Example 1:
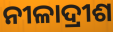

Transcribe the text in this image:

ନୀଳାଦ୍ରୀଶ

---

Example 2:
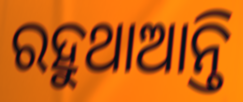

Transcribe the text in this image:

ରହୁଥାଆନ୍ତି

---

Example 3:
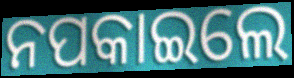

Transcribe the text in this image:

ନପକାଇଲେ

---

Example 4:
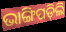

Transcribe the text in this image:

ଭାଙ୍ଗିପଡ଼ିଲି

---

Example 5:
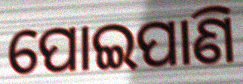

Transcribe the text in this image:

ପୋଇପାଣି